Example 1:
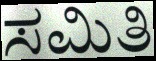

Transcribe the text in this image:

ಸಮಿತಿ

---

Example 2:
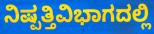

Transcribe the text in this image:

ನಿಷ್ಪತ್ತಿವಿಭಾಗದಲ್ಲಿ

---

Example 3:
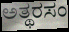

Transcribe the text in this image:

ಅತ್ಥರಸಂ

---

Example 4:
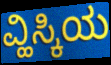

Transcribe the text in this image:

ವ್ಹಿಸ್ಕಿಯ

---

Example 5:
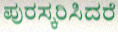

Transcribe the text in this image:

ಪುರಸ್ಕರಿಸಿದರೆ